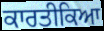
ਕਾਰਤੀਕਿਆ